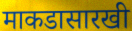
माकडासारखी